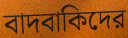
বাদবাকিদের